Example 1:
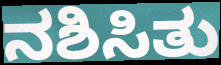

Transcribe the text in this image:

ನಶಿಸಿತು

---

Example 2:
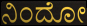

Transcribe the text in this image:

ನಿಂದೋ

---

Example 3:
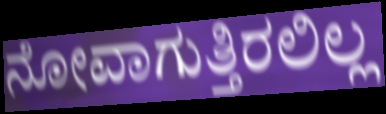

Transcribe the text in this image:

ನೋವಾಗುತ್ತಿರಲಿಲ್ಲ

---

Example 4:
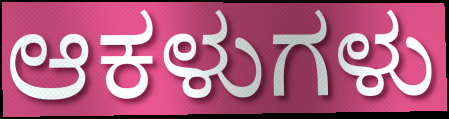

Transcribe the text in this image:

ಆಕಳುಗಳು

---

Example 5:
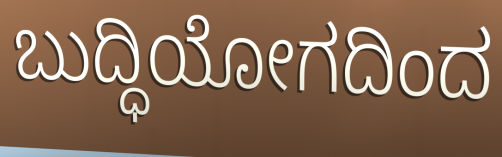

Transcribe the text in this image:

ಬುದ್ಧಿಯೋಗದಿಂದ